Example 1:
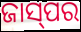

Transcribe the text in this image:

ଜାସ୍‌ପର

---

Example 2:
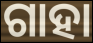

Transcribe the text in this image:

ଗାହା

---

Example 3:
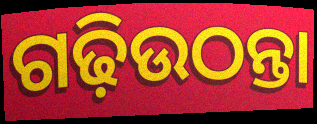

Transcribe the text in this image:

ଗଢ଼ିଉଠନ୍ତା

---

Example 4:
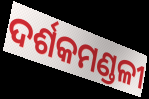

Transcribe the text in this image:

ଦର୍ଶକମଣ୍ଡଳୀ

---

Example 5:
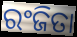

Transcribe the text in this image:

ରଂଜିତା